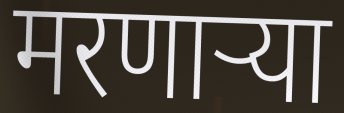
मरणार्‍या